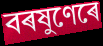
বৰষুণেৰে